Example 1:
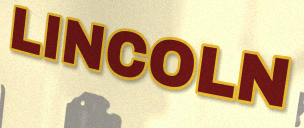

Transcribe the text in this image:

LINCOLN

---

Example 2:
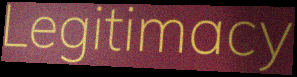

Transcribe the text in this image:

Legitimacy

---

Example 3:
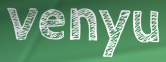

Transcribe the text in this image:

venyu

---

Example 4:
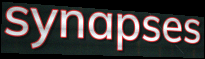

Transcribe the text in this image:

synapses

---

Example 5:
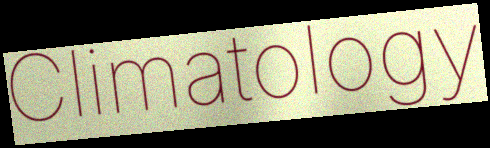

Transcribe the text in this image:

Climatology